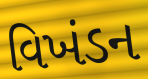
વિખંડન